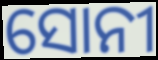
ସୋନୀ